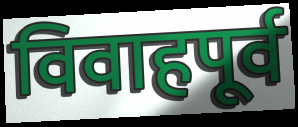
विवाहपूर्व